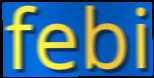
febi